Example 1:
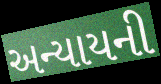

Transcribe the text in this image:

અન્યાયની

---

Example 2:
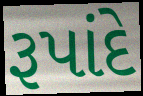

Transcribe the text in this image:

રૂપાંદે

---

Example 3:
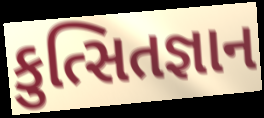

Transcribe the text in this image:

કુત્સિતજ્ઞાન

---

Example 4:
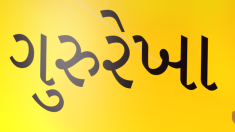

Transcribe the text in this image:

ગુરુરેખા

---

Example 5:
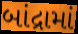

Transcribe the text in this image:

બાંદ્રામાં